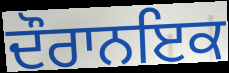
ਦੌਰਾਨਇਕ